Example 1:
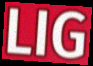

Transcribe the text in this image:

LIG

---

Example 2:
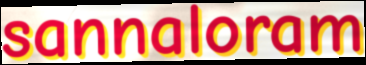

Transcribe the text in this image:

sannaloram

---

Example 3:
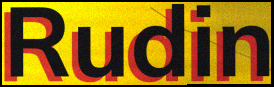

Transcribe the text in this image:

Rudin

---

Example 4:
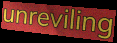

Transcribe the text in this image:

unreviling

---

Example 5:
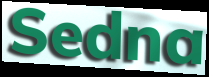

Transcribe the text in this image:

Sedna